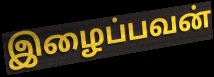
இழைப்பவன்